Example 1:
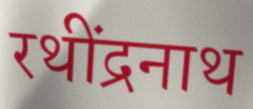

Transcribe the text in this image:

रथींद्रनाथ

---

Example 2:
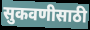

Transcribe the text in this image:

सुकवणीसाठी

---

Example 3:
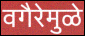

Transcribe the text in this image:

वगैरेमुळे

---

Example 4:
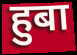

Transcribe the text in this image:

हुबा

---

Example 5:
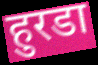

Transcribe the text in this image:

हुरडा